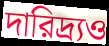
দারিদ্র্যও